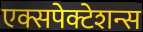
एक्सपेक्टेशन्स